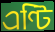
এণ্টি